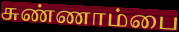
சுண்ணாம்பை